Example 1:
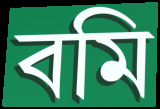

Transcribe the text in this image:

বমি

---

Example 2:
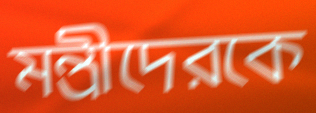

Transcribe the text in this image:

মন্ত্রীদেরকে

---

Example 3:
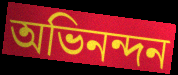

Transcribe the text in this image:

অভিনন্দন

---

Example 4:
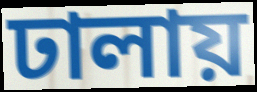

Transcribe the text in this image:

ঢালায়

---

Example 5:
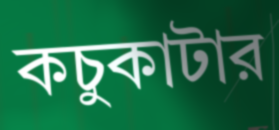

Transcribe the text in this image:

কচুকাটার